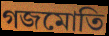
গজমোতি